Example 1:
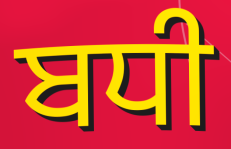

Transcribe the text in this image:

ਬਧੀ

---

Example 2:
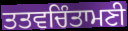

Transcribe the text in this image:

ਤਤਵਚਿੰਤਾਮਣੀ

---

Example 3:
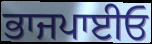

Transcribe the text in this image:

ਭਾਜਪਾਈਓ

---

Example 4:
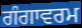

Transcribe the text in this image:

ਗੰਗਾਵਰਮ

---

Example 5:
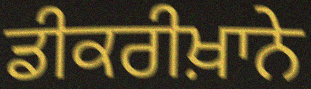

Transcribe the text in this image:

ਡੀਕਰੀਖ਼ਾਨੇ